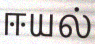
ஈயல்